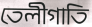
তেলীগাতি